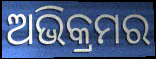
ଅଭିକ୍ରମର